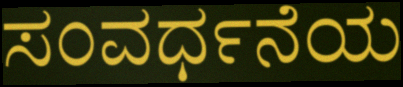
ಸಂವರ್ಧನೆಯ